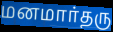
மனமார்தரு